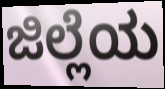
ಜಿಲ್ಲೆಯ